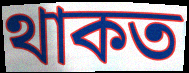
থাকত